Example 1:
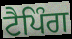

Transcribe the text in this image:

ਟੈਪਿੰਗ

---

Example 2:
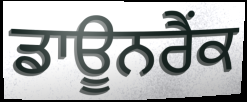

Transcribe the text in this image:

ਡਾਊਨਰੈਂਕ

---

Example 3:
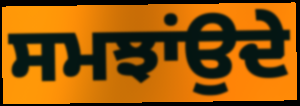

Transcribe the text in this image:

ਸਮਝਾਂਉਦੇ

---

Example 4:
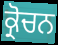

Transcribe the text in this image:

ਕ੍ਰੋਚਨ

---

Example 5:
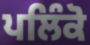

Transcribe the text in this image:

ਪਲਿੰਕੋ